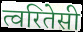
त्वरितेसी